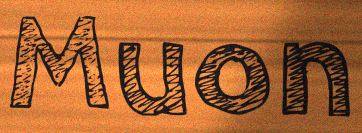
Muon